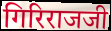
गिरिराजजी